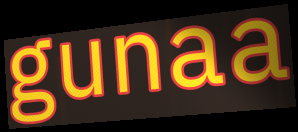
gunaa